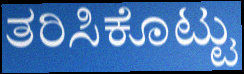
ತರಿಸಿಕೊಟ್ಟು